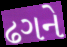
ઢગને